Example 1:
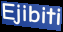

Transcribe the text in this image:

Ejibiti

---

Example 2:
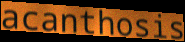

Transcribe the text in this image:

acanthosis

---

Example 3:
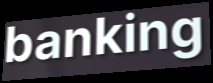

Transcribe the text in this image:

banking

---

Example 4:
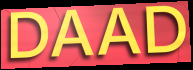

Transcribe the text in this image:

DAAD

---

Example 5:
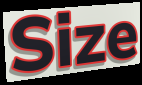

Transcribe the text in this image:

Size